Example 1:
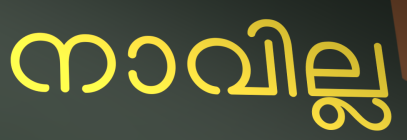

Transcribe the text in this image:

നാവില്ല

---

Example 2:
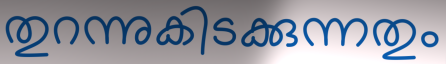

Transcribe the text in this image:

തുറന്നുകിടക്കുന്നതും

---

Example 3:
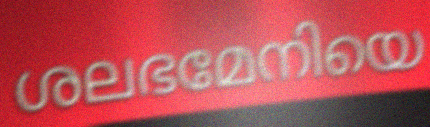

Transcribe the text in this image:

ശലഭമേനിയെ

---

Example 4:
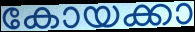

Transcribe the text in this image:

കോയക്കാ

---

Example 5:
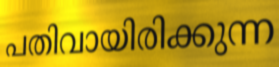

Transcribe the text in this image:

പതിവായിരിക്കുന്ന